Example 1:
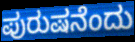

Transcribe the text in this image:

ಪುರುಷನೆಂದು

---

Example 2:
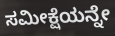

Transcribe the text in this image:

ಸಮೀಕ್ಷೆಯನ್ನೇ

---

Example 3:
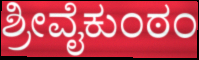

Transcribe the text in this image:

ಶ್ರೀವೈಕುಂಠಂ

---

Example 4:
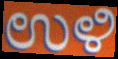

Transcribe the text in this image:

ಉಳಿ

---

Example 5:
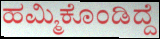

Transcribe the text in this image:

ಹಮ್ಮಿಕೊಂಡಿದ್ದೆ